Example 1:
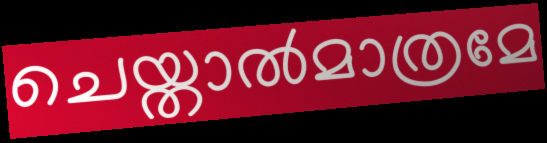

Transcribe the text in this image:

ചെയ്താൽമാത്രമേ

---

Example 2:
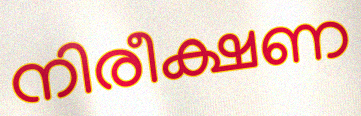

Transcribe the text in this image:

നിരീക്ഷണ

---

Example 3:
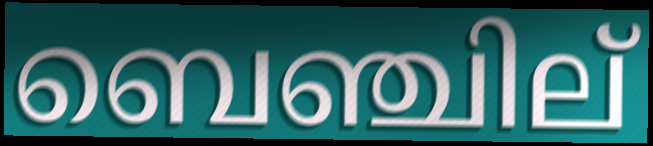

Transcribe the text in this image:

ബെഞ്ചില്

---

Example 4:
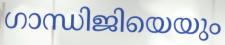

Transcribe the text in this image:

ഗാന്ധിജിയെയും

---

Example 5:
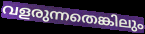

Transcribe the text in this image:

വളരുന്നതെങ്കിലും